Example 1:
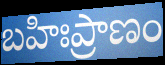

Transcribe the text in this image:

బహిఃప్రాణం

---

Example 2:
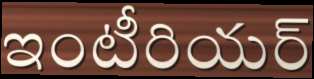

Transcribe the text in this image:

ఇంటీరియర్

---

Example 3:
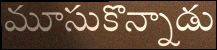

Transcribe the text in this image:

మూసుకొన్నాడు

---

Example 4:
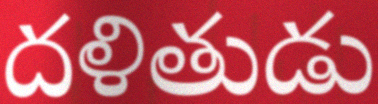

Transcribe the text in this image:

దళితుడు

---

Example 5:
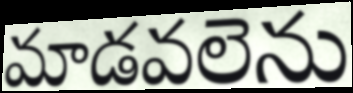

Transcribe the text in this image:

మాడవలెను